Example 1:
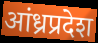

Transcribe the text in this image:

आंध्रप्रदेश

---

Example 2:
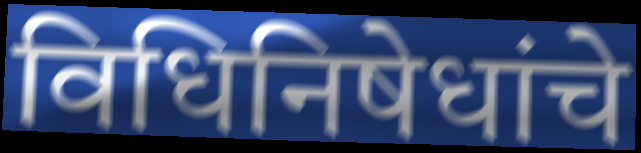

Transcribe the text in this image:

विधिनिषेधांचे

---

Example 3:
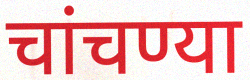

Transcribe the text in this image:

चांचण्या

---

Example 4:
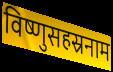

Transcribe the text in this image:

विष्णुसहस्रनाम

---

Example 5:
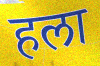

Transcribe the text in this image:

हला